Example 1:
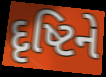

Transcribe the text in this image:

દૃષ્ટિને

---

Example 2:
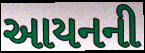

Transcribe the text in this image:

આયનની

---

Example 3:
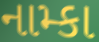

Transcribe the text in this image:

નામ્કા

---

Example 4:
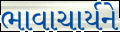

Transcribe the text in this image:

ભાવાચાર્યને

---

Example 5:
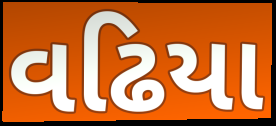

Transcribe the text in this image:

વઢિયા